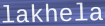
lakhela